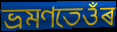
ভ্ৰমণতেওঁৰ